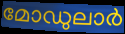
മോഡുലാർ